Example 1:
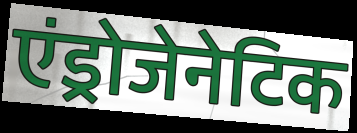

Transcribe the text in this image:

एंड्रोजेनेटिक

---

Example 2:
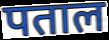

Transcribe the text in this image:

पताल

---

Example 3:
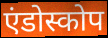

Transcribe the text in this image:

एंडोस्कोप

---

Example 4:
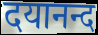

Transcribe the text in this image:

दयानन्द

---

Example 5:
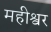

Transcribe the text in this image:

महीश्वर